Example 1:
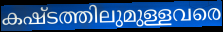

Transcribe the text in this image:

കഷ്ടത്തിലുമുള്ളവരെ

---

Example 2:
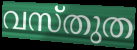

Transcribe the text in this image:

വസ്തുത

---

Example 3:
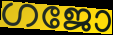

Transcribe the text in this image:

ഗജോ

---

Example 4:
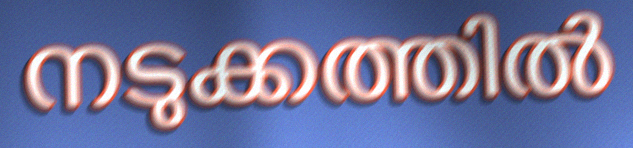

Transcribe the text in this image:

നടുക്കത്തിൽ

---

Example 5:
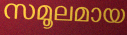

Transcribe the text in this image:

സമൂലമായ